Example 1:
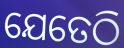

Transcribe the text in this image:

ଯେତେଠି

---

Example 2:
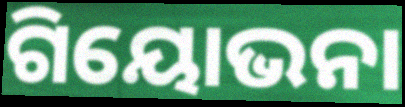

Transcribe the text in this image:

ଗିୟୋଭନା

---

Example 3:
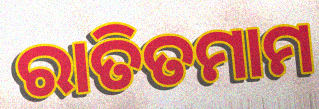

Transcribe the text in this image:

ରାତିତମାମ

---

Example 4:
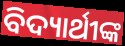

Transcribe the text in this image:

ବିଦ୍ୟାର୍ଥୀଙ୍କ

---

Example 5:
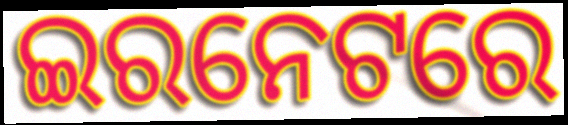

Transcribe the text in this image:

ଇରନେଟରେ